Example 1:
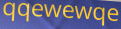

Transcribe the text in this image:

qqewewqe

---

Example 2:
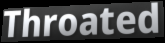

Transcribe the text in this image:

Throated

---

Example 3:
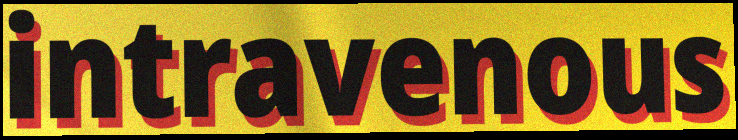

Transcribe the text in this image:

intravenous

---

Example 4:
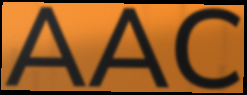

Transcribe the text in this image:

AAC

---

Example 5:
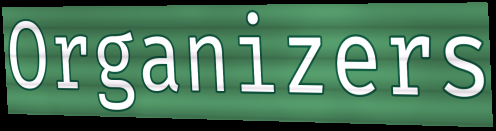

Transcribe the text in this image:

Organizers